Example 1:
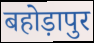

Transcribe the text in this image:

बहोड़ापुर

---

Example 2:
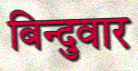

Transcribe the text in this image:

बिन्दुवार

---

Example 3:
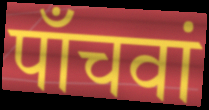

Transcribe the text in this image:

पाँचवां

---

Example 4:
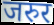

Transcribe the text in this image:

जरुर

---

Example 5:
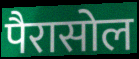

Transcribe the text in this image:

पैरासोल